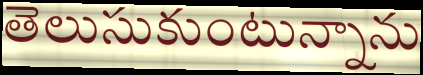
తెలుసుకుంటున్నాను